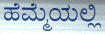
ಹೆಮ್ಮೆಯಲ್ಲಿ